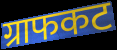
ग्राफकट